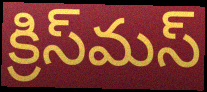
క్రిస్‌మస్